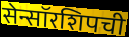
सेन्सॉरशिपची